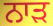
ਨਾੜ